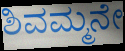
ಶಿವಮ್ಮನೇ